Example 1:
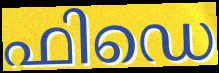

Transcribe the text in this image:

ഫിഡെ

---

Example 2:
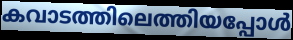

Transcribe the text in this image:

കവാടത്തിലെത്തിയപ്പോൾ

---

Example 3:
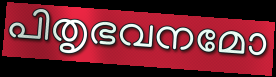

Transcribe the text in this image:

പിതൃഭവനമോ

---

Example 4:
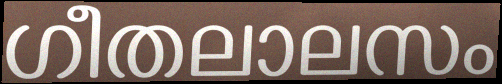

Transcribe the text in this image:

ഗീതലാലസം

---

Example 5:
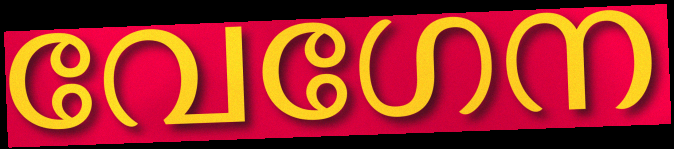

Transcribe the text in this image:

വേഗേന